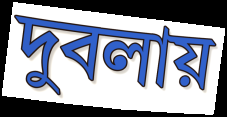
দুবলায়